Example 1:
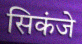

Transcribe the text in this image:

सिकंजे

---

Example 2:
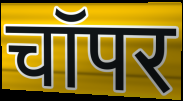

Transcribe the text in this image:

चॉपर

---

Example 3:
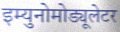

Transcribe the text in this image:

इम्युनोमोड्यूलेटर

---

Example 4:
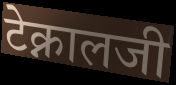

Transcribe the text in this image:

टेक्नालजी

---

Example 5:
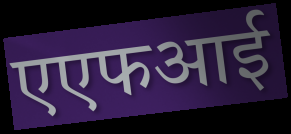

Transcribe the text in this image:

एएफआई